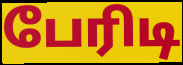
பேரிடி